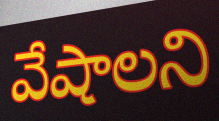
వేషాలని